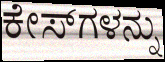
ಕೇಸ್‌ಗಳನ್ನು